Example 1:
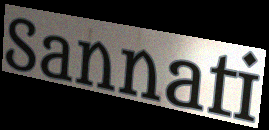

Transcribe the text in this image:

Sannati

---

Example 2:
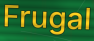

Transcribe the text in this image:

Frugal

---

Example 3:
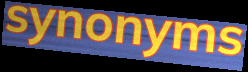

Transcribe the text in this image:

synonyms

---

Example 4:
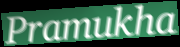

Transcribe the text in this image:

Pramukha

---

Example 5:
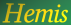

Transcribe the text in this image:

Hemis